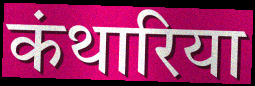
कंथारिया